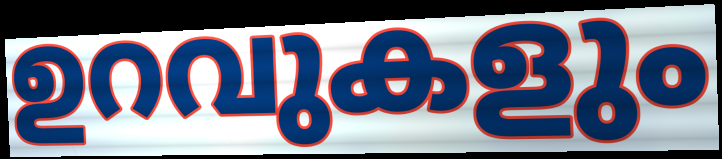
ഉറവുകളും